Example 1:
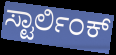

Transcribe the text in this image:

ಸ್ಟಾರ್ಲಿಂಕ್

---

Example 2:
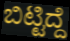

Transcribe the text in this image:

ಬಿಟ್ಟಿದ್ದೆ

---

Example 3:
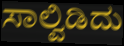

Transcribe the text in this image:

ಸಾಲ್ವಿಡಿದು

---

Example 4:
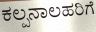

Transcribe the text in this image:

ಕಲ್ಪನಾಲಹರಿಗೆ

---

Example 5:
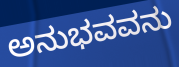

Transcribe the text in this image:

ಅನುಭವವನು